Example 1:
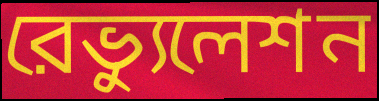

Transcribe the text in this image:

রেভ্যুলেশন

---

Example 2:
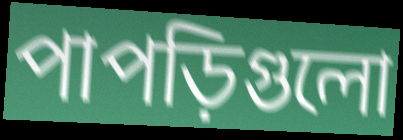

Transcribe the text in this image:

পাপড়িগুলো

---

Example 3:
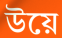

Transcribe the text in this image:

উয়ে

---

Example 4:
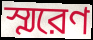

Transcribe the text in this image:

স্মরেণ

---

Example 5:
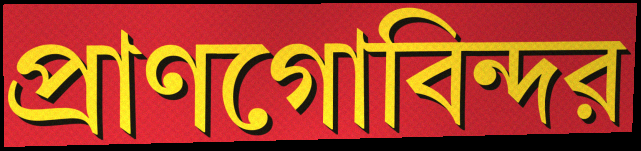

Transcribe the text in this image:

প্রাণগোবিন্দর